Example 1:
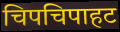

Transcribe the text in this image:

चिपचिपाहट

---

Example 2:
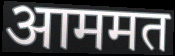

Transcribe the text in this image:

आममत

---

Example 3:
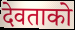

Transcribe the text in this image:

देवताको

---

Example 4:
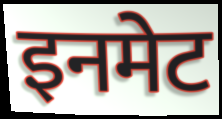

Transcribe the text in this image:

इनमेट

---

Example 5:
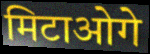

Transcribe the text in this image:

मिटाओगे